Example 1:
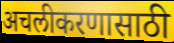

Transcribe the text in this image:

अचलीकरणासाठी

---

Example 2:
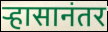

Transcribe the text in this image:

ऱ्हासानंतर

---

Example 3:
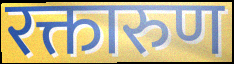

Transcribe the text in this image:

रक्तारुण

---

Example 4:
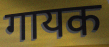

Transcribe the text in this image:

गायक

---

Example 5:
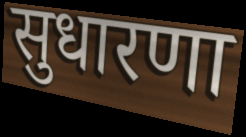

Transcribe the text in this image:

सुधारणा